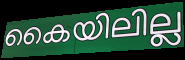
കൈയിലില്ല